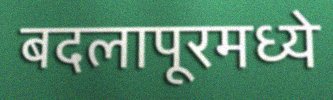
बदलापूरमध्ये